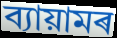
ব্যায়ামৰ